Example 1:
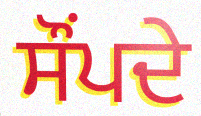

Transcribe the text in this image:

ਸੌਂਪਦੇ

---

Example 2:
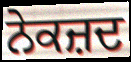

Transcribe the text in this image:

ਨੇਕਜ਼ਦ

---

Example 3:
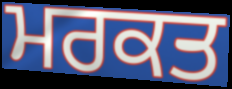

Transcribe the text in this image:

ਮਰਕਤ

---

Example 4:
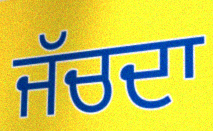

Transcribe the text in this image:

ਜੱਚਦਾ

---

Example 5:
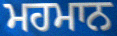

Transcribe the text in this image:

ਮਹਮਾਨ